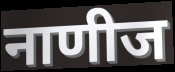
नाणीज